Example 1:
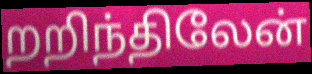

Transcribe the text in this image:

றறிந்திலேன்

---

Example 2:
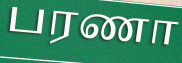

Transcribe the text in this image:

பரணா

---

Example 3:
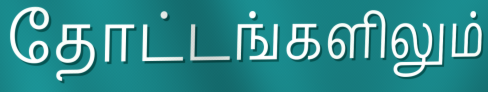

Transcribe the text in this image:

தோட்டங்களிலும்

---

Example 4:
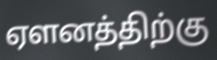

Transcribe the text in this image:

ஏளனத்திற்கு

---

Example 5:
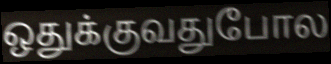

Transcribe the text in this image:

ஒதுக்குவதுபோல